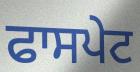
ਫਾਸਪੇਟ